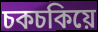
চকচকিয়ে